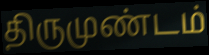
திருமுண்டம்